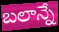
బలాన్నే